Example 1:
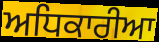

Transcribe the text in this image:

ਅਧਿਕਾਰੀਆ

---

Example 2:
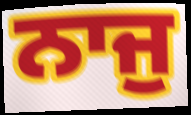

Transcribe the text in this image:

ਨਾਜੁ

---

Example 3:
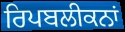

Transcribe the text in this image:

ਰਿਪਬਲੀਕਨਾਂ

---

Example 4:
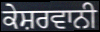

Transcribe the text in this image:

ਕੇਸ਼ਰਵਾਨੀ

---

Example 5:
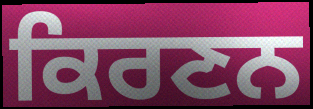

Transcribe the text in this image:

ਕਿਰਣਨ